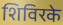
शिविरके